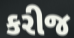
કરીજ